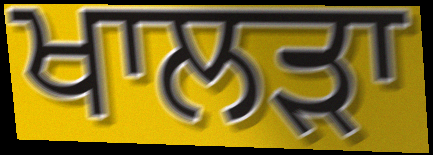
ਖਾਲੜਾ